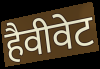
हैवीवेट